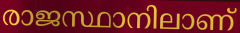
രാജസ്ഥാനിലാണ്